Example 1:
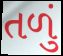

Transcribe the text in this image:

તળું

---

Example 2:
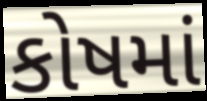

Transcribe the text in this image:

કોષમાં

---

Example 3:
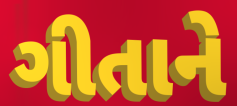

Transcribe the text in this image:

ગીતાને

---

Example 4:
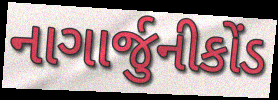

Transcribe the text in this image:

નાગાર્જુનીકોંડ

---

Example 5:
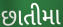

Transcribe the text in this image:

છાતીમા